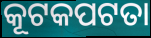
କୂଟକପଟତା